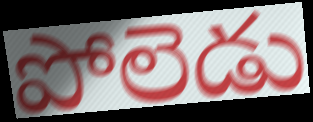
పోలెడు